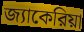
জ্যাকেরিয়া